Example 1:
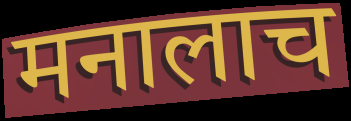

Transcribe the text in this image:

मनालाच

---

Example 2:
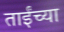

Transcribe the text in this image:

ताईंच्या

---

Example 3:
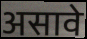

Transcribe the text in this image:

असावे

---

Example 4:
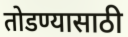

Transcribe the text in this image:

तोडण्यासाठी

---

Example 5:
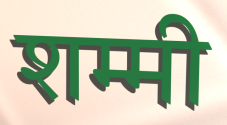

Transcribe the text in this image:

शम्मी